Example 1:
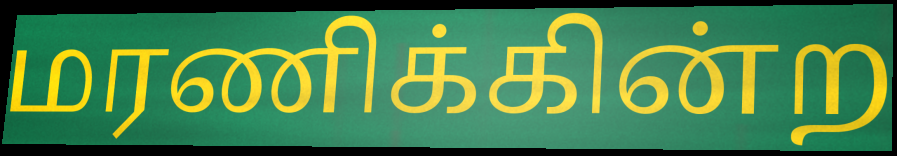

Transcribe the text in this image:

மரணிக்கின்ற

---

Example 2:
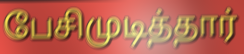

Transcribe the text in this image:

பேசிமுடித்தார்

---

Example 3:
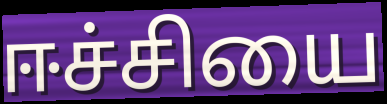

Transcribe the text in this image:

ஈச்சியை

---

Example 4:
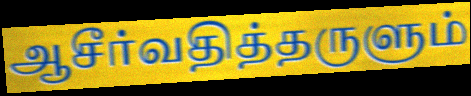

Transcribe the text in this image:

ஆசீர்வதித்தருளும்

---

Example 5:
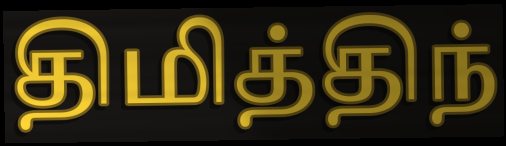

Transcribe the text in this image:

திமித்திந்